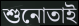
শুনোতাই